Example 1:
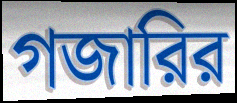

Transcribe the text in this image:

গজারির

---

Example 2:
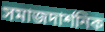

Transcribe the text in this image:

সমাজদার্শনিক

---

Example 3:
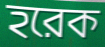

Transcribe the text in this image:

হরেক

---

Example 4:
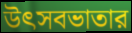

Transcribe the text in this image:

উৎসবভাতার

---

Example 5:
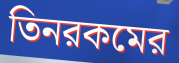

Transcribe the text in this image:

তিনরকমের